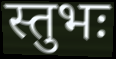
स्तुभः